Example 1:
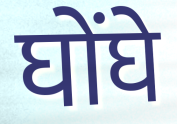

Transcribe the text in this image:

घोंघे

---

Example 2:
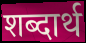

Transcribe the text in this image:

शब्दार्थ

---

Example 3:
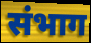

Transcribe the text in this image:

संभाग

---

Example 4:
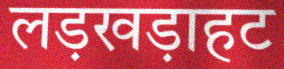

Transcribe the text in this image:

लड़खड़ाहट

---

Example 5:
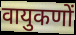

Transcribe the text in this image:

वायुकणों